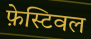
फ़ेस्टिवल